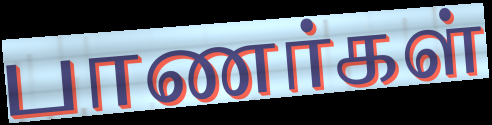
பாணர்கள்